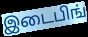
இடைபிங்